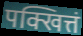
पक्खित्तं